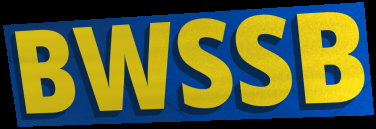
BWSSB